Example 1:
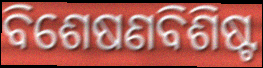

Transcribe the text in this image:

ବିଶେଷଣବିଶିଷ୍ଟ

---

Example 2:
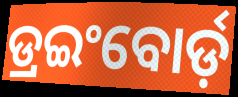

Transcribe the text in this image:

ଡ୍ରଇଂବୋର୍ଡ଼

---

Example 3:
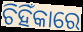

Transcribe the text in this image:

ଚିହିଁକାରେ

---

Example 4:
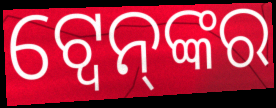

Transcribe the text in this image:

ଟ୍ୱେନ୍‌ଙ୍କର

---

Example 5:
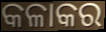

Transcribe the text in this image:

କଳାକର